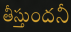
తీస్తుందనీ